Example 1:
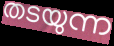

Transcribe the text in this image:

തടയുന്ന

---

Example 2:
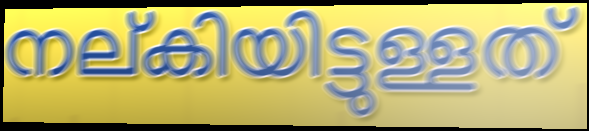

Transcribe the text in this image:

നല്കിയിട്ടുള്ളത്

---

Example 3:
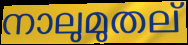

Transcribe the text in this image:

നാലുമുതല്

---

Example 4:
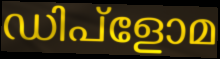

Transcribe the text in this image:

ഡിപ്ളോമ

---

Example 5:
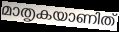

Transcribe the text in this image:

മാതൃകയാണിത്